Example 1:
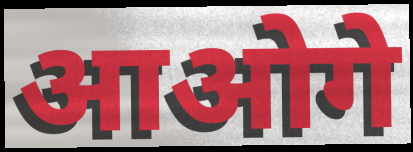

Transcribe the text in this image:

आओगे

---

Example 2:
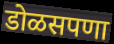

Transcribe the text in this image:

डोळसपणा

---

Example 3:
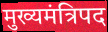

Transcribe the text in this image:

मुख्यमंत्रिपद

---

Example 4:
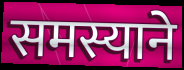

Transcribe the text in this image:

समस्याने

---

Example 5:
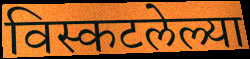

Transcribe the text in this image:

विस्कटलेल्या